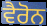
ਵੈਰੋਨ